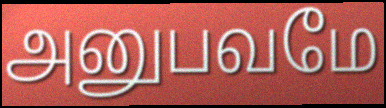
அனுபவமே